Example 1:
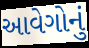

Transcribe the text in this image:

આવેગોનું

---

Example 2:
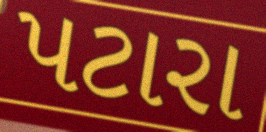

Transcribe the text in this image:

પટારા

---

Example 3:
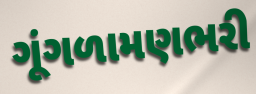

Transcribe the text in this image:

ગૂંગળામણભરી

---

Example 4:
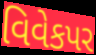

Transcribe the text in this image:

વિવેકપર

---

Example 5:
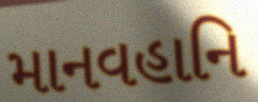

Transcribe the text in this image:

માનવહાનિ